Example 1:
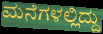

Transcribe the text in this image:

ಮನೆಗಳಲ್ಲಿದ್ದು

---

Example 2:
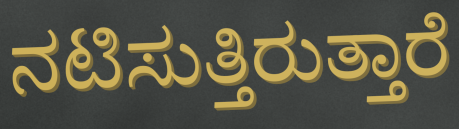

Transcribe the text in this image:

ನಟಿಸುತ್ತಿರುತ್ತಾರೆ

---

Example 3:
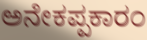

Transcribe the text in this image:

ಅನೇಕಪ್ಪಕಾರಂ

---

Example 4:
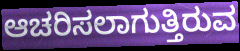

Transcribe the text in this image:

ಆಚರಿಸಲಾಗುತ್ತಿರುವ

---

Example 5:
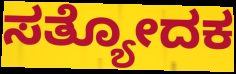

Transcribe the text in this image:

ಸತ್ಯೋದಕ